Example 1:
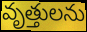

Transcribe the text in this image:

వృత్తులను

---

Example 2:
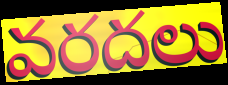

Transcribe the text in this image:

వరదలు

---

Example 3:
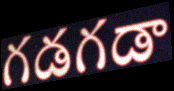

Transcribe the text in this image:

గడగడా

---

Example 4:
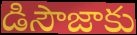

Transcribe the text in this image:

డిసౌజాకు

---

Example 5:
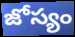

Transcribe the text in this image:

జోస్యం